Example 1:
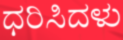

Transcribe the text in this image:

ಧರಿಸಿದಳು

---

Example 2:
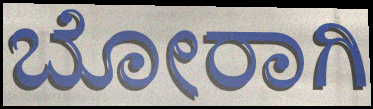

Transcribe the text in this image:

ಬೋರಾಗಿ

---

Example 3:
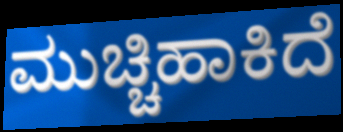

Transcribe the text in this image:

ಮುಚ್ಚಿಹಾಕಿದೆ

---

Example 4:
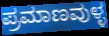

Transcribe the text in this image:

ಪ್ರಮಾಣವುಳ್ಳ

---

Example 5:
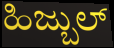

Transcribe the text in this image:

ಹಿಜ್ಬುಲ್